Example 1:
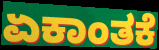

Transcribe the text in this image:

ಏಕಾಂತಕೆ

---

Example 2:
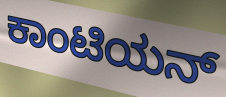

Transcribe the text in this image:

ಕಾಂಟಿಯನ್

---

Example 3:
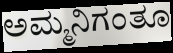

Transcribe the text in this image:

ಅಮ್ಮನಿಗಂತೂ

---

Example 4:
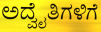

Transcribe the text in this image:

ಅದ್ವೈತಿಗಳಿಗೆ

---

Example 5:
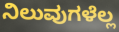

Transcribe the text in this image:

ನಿಲುವುಗಳೆಲ್ಲ